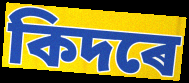
কিদৰে